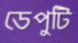
ডেপুটি